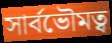
সার্বভৌমত্ব